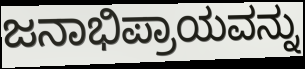
ಜನಾಭಿಪ್ರಾಯವನ್ನು